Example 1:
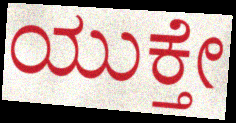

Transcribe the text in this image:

ಯುಕ್ತೇ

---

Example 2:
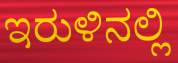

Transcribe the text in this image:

ಇರುಳಿನಲ್ಲಿ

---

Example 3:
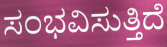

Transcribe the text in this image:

ಸಂಭವಿಸುತ್ತಿದೆ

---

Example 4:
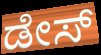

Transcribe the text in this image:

ಡೇಸ್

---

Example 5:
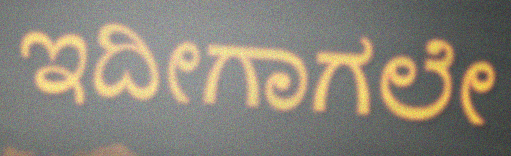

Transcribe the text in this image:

ಇದೀಗಾಗಲೇ